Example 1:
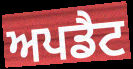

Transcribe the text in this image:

ਅਪਡੈਟ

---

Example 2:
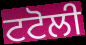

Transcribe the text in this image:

ਟਟੋਲੀ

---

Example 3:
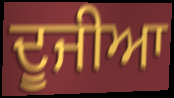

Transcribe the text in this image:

ਦੂਜੀਆ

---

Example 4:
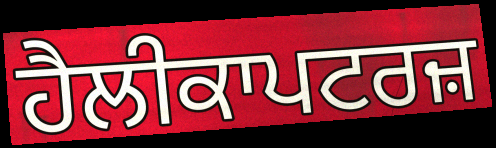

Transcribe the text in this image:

ਹੈਲੀਕਾਪਟਰਜ਼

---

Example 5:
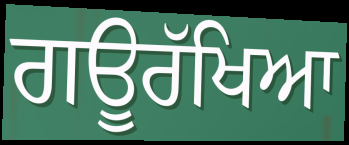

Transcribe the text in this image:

ਗਊਰੱਖਿਆ